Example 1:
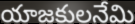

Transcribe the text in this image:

యాజకులనేమి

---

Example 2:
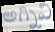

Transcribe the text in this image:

అగ్నివి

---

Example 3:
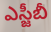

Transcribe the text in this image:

ఎస్జీబీ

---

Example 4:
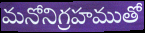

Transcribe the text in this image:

మనోనిగ్రహముతో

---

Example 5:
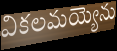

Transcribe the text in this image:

వికలమయ్యెను